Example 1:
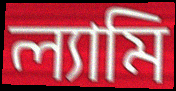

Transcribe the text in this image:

ল্যামি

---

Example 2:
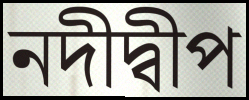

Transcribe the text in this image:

নদীদ্বীপ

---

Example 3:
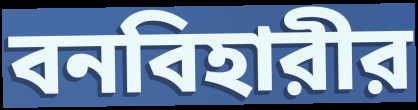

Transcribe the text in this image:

বনবিহারীর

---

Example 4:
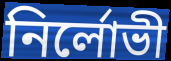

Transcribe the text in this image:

নির্লোভী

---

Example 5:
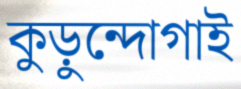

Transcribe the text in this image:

কুড়ুন্দোগাই